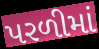
પરળીમાં